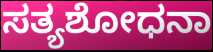
ಸತ್ಯಶೋಧನಾ